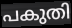
പകുതി